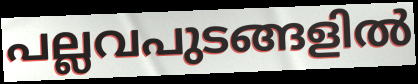
പല്ലവപുടങ്ങളിൽ